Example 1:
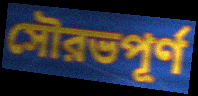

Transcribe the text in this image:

সৌরভপূর্ণ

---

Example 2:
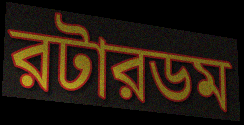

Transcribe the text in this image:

রটারডম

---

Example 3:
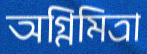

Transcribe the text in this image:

অগ্নিমিত্রা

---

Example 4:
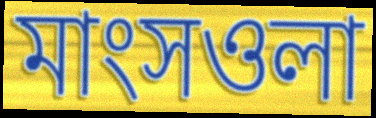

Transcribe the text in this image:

মাংসওলা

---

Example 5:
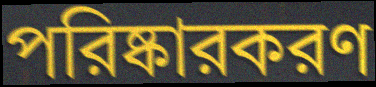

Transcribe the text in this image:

পরিষ্কারকরণ